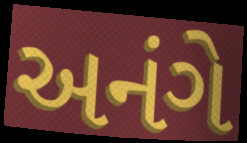
અનંગે